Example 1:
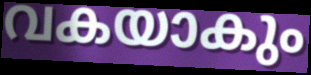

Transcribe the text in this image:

വകയാകും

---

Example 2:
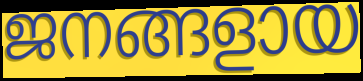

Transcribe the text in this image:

ജനങ്ങളായ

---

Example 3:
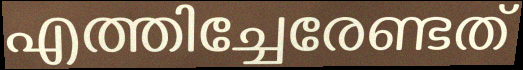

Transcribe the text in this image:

എത്തിച്ചേരേണ്ടത്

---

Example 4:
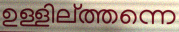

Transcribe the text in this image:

ഉള്ളില്ത്തന്നെ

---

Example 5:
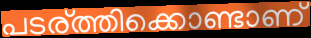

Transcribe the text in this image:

പടര്ത്തിക്കൊണ്ടാണ്